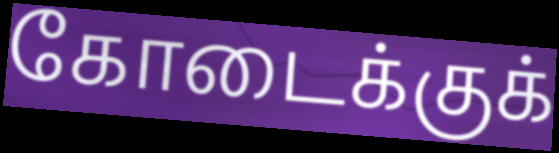
கோடைக்குக்